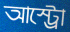
আস্ট্রো